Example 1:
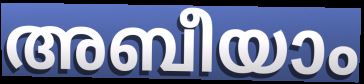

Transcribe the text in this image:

അബീയാം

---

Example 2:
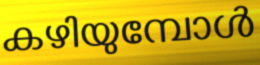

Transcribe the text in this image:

കഴിയുമ്പോൾ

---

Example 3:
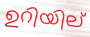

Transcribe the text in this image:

ഉറിയില്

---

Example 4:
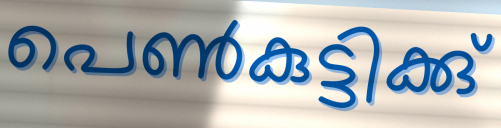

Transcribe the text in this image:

പെൺകുട്ടിക്കു്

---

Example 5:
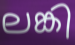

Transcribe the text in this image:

ലങ്കി